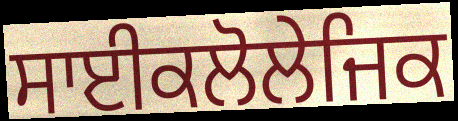
ਸਾਈਕਲੋਲੇਜਿਕ